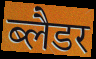
ब्लैडर